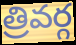
త్రివర్గ